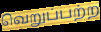
வெறுப்பற்ற